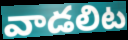
వాడలిట